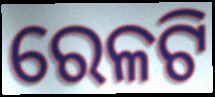
ରେଳଟି